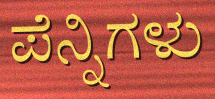
ಪೆನ್ನಿಗಳು